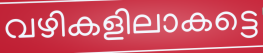
വഴികളിലാകട്ടെ